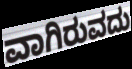
ವಾಗಿರುವದು